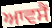
ਆਵਸੈਂ